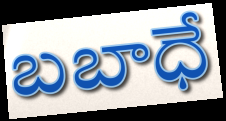
బబాధే